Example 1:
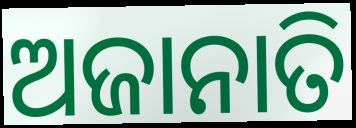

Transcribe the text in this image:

ଅଜାନାତି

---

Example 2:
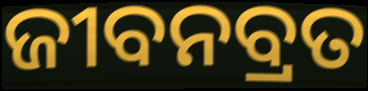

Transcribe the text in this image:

ଜୀବନବ୍ରତ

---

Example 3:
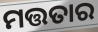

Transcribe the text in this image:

ମତ୍ତତାର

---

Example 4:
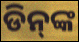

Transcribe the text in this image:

ଡିନ୍‌ଙ୍କ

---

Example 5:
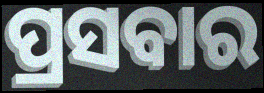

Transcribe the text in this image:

ପ୍ରସବାର